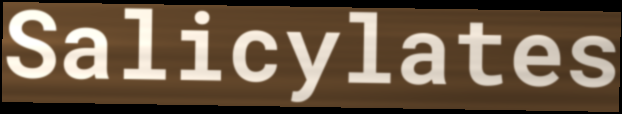
Salicylates